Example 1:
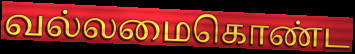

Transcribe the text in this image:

வல்லமைகொண்ட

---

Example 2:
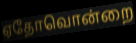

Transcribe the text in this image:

ஏதோவொன்றை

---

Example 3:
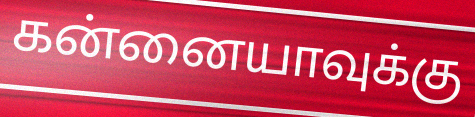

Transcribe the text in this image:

கன்னையாவுக்கு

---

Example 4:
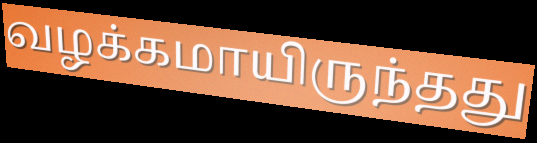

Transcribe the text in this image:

வழக்கமாயிருந்தது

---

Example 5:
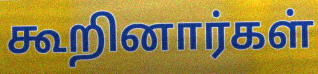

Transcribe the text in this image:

கூறினார்கள்